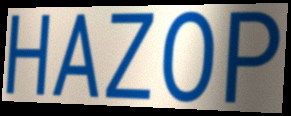
HAZOP